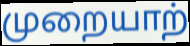
முறையாற்